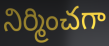
నిర్మించగా